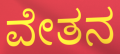
ವೇತನ